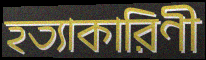
হত্যাকারিণী